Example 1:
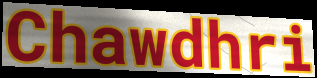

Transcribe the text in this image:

Chawdhri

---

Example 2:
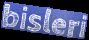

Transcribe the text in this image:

bisleri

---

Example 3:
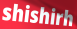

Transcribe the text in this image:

shishirh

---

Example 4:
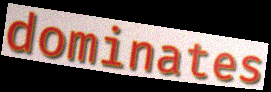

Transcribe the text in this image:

dominates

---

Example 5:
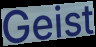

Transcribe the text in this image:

Geist